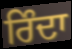
ਰਿੰਦਾ